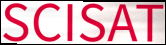
SCISAT